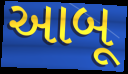
આબૂ